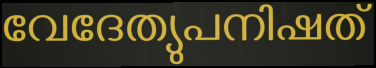
വേദേത്യുപനിഷത്